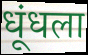
धूंधला